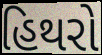
હિથરો